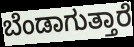
ಬೆಂಡಾಗುತ್ತಾರೆ